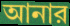
আনার